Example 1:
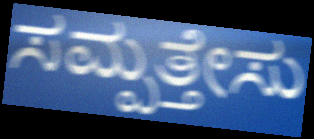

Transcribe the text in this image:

ಸಮ್ಪತ್ತೇಸು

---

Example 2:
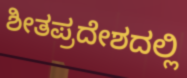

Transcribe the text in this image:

ಶೀತಪ್ರದೇಶದಲ್ಲಿ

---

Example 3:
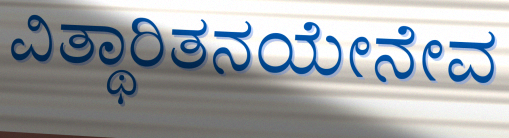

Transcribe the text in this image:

ವಿತ್ಥಾರಿತನಯೇನೇವ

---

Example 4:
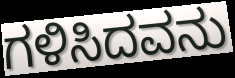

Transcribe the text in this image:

ಗಳಿಸಿದವನು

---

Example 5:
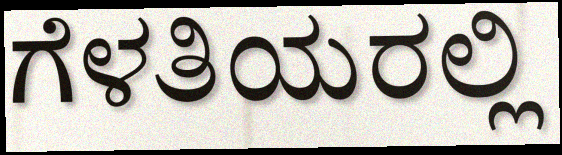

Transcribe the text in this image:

ಗೆಳತಿಯರಲ್ಲಿ